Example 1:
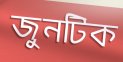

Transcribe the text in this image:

জুনটিক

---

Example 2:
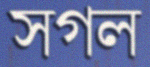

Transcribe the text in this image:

সগল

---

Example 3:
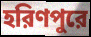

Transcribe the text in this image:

হরিণপুরে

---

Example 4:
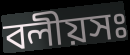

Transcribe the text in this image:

বলীয়সঃ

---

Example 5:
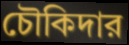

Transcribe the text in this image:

চৌকিদার